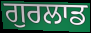
ਗੁਰਲਾਡ